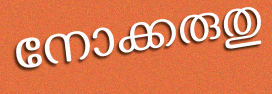
നോക്കരുതു